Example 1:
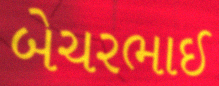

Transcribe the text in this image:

બેચરભાઈ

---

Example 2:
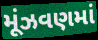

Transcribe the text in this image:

મૂંઝવણમાં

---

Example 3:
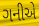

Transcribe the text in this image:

ગનીએ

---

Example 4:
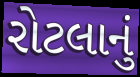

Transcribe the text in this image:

રોટલાનું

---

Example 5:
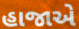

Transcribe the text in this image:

હાજાએ